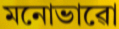
মনোভাৱো